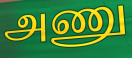
அணு